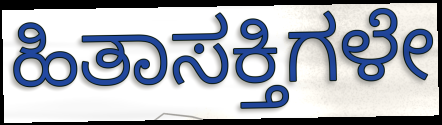
ಹಿತಾಸಕ್ತಿಗಳೇ